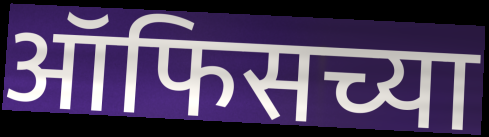
ऑफिसच्या